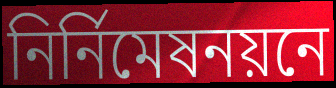
নির্নিমেষনয়নে